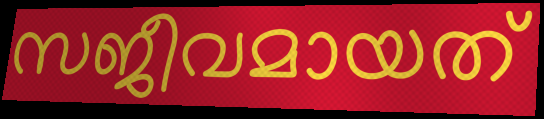
സജീവമായത്